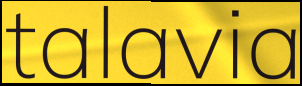
talavia